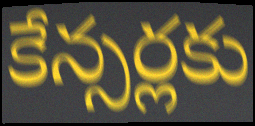
కేన్సర్లకు